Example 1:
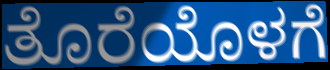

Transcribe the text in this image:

ತೊರೆಯೊಳಗೆ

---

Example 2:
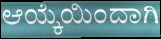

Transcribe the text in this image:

ಆಯ್ಕೆಯಿಂದಾಗಿ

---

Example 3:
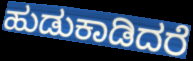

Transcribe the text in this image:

ಹುಡುಕಾಡಿದರೆ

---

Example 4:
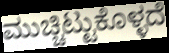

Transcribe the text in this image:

ಮುಚ್ಚಿಟ್ಟುಕೊಳ್ಳದೆ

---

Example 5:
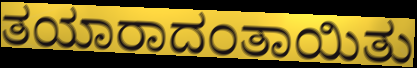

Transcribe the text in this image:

ತಯಾರಾದಂತಾಯಿತು